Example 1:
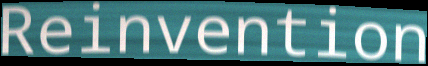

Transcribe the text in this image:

Reinvention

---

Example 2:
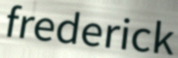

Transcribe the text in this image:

frederick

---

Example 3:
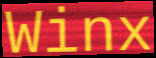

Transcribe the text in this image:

Winx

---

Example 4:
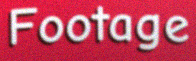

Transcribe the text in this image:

Footage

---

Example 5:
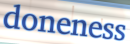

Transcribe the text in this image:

doneness